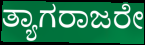
ತ್ಯಾಗರಾಜರೇ